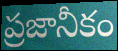
ప్రజానీకం